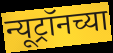
न्यूट्रॉनच्या